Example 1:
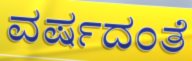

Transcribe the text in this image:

ವರ್ಷದಂತೆ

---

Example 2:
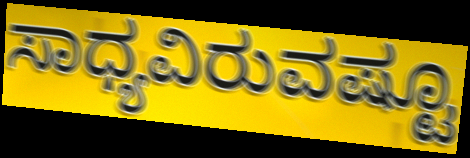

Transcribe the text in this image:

ಸಾಧ್ಯವಿರುವಷ್ಟೂ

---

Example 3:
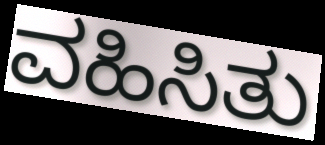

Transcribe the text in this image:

ವಹಿಸಿತು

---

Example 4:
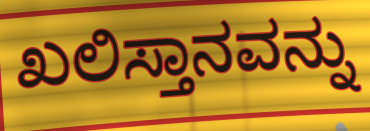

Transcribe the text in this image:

ಖಲಿಸ್ತಾನವನ್ನು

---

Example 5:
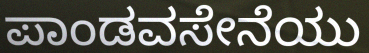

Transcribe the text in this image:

ಪಾಂಡವಸೇನೆಯು